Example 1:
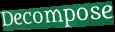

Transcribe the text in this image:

Decompose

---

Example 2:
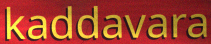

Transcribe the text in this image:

kaddavara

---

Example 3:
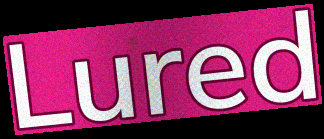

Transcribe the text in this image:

Lured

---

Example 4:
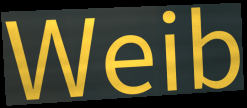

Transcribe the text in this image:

Weib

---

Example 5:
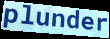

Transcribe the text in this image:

plunder